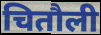
चितौली